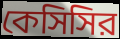
কেসিসির